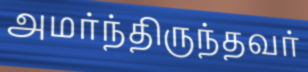
அமர்ந்திருந்தவர்